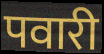
पवारी